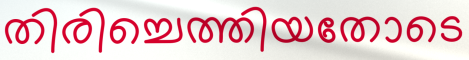
തിരിച്ചെത്തിയതോടെ